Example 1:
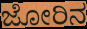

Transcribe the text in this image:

ಜೋರಿನ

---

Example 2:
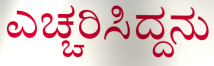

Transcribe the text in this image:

ಎಚ್ಚರಿಸಿದ್ದನು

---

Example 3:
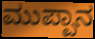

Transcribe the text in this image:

ಮುಪ್ಪಾನ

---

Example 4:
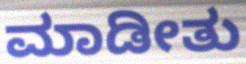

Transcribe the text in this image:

ಮಾಡೀತು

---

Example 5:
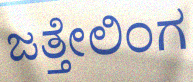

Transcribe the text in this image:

ಜತ್ತೇಲಿಂಗ